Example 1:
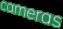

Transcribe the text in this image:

cameras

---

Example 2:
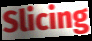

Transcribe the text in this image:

Slicing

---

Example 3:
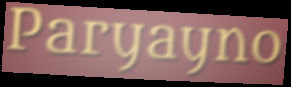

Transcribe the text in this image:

Paryayno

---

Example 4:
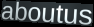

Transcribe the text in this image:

aboutus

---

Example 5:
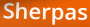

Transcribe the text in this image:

Sherpas